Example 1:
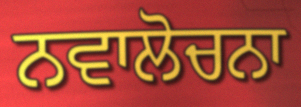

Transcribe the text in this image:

ਨਵਾਲੋਚਨਾ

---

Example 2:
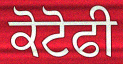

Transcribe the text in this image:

ਕੋਟੋਫੀ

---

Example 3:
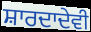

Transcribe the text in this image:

ਸ਼ਾਰਦਾਦੇਵੀ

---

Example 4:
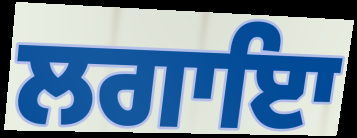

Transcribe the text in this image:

ਲਗਾਇਾ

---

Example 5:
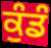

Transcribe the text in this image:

ਕੁੰਡੰ